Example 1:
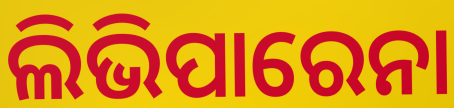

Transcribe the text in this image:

ଲିଭିପାରେନା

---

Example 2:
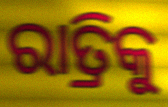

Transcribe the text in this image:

ରାତ୍ରିକୁ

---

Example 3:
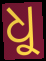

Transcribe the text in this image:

ଧୁ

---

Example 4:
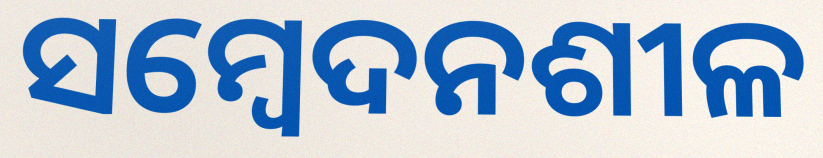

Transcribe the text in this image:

ସମ୍ବେଦନଶୀଳ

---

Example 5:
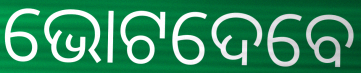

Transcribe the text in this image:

ଭୋଟଦେବେ